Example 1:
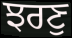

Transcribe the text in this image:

ਝਰਣੁ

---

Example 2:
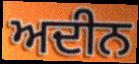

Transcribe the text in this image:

ਅਦੀਨ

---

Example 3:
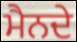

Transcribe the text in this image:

ਮੈਨਦੇ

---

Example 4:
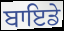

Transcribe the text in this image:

ਬਾਇਡੇ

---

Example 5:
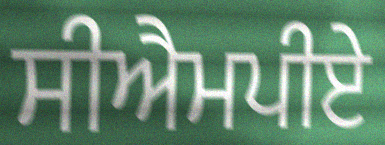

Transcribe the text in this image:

ਸੀਐਮਪੀਏ